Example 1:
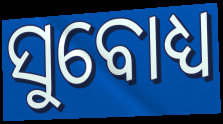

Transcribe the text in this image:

ସୁବୋଧ୍ୟ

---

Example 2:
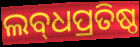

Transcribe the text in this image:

ଲବ୍‌ଧପ୍ରତିଷ୍ଠ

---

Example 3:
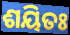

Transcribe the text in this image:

ଶୟିତଃ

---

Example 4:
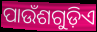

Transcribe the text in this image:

ପାଉଁଶଗୁଡ଼ିଏ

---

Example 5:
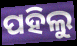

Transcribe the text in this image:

ପହିଲୁ